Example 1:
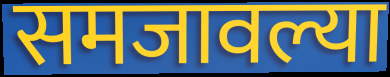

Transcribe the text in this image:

समजावल्या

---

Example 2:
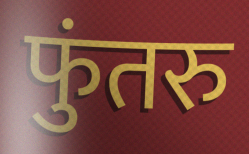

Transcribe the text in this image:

फुंतरु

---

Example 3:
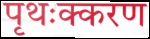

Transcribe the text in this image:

पृथःक्करण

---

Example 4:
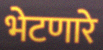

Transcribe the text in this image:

भेटणारे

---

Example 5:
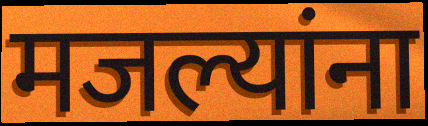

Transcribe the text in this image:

मजल्यांना